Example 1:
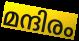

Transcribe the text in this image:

മന്ദിരം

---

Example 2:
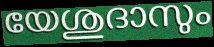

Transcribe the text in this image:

യേശുദാസും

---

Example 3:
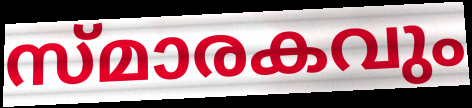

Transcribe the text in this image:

സ്മാരകവും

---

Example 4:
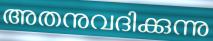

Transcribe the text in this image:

അതനുവദിക്കുന്നു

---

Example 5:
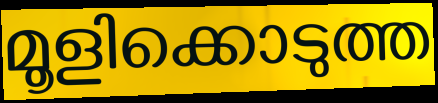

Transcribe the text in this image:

മൂളിക്കൊടുത്ത